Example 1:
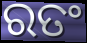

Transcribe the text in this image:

ରତଂ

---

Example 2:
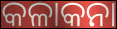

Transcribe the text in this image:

କଳାକନା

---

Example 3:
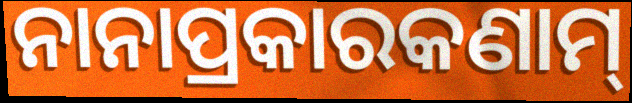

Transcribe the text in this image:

ନାନାପ୍ରକାରକଣାମ୍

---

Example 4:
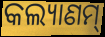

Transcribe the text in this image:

କଲ୍ୟାଣମ୍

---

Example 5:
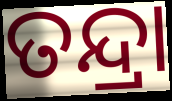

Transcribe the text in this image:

ତନ୍ଦ୍ରା